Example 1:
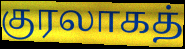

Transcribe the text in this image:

குரலாகத்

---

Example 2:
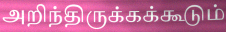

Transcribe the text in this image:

அறிந்திருக்கக்கூடும்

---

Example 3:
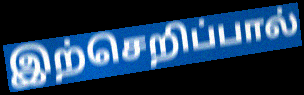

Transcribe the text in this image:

இற்செறிப்பால்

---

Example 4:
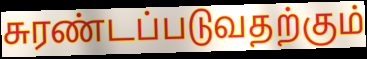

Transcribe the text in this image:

சுரண்டப்படுவதற்கும்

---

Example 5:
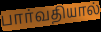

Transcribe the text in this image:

பார்வதியால்